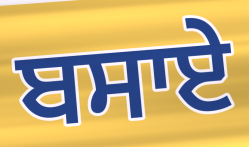
ਬਸਾਏ